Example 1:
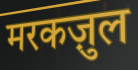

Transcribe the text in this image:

मरकज़ुल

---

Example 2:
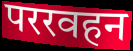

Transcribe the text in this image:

पररवहन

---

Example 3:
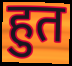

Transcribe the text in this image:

हुत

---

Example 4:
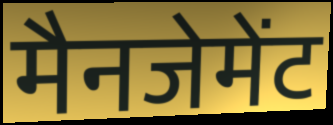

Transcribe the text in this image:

मैनजेमेंट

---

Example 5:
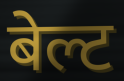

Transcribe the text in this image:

बेल्‍ट